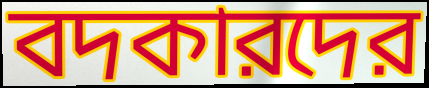
বদকারদের